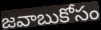
జవాబుకోసం